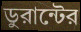
ডুরান্টের